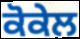
ਕੋਕੇਲ